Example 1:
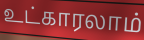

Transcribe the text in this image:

உட்காரலாம்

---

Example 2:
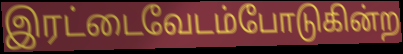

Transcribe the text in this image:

இரட்டைவேடம்போடுகின்ற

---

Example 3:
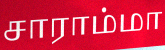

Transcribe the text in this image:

சாராம்மா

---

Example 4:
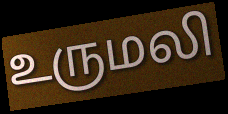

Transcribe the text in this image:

உருமலி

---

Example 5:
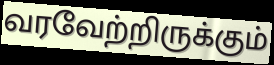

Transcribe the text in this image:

வரவேற்றிருக்கும்